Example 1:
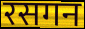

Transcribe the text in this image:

रसगन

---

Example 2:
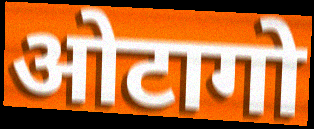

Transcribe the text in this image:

ओटागो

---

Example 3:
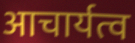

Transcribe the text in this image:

आचार्यत्व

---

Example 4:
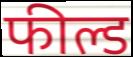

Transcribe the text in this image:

फील्‍ड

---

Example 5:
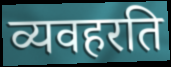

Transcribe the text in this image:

व्यवहरति